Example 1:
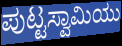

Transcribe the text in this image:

ಪುಟ್ಟಸ್ವಾಮಿಯು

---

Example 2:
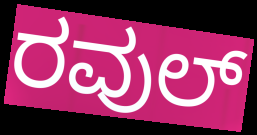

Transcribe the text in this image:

ರವುಲ್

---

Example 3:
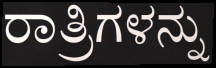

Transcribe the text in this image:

ರಾತ್ರಿಗಳನ್ನು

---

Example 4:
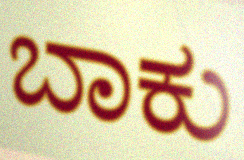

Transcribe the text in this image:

ಬಾಕು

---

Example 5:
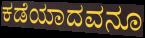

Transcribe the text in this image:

ಕಡೆಯಾದವನೂ